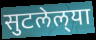
सुटलेल्या